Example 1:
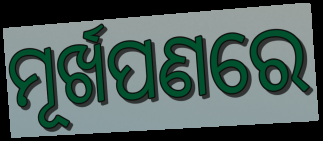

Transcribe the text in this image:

ମୂର୍ଖପଣରେ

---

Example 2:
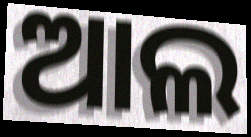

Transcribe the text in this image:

ଆଲ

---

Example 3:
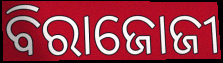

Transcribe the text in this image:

ବିରାଜୋଜୀ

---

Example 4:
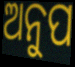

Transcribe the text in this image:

ଅନୁପ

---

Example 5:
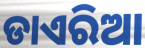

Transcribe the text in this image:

ଡାଏରିଆ